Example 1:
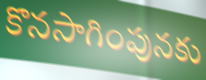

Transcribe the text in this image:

కొనసాగింపునకు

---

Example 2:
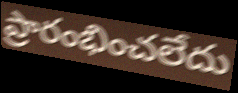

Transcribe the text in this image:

ప్రారంభించలేదు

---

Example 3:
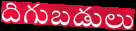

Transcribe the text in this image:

దిగుబడులు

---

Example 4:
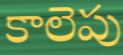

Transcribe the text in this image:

కాలెపు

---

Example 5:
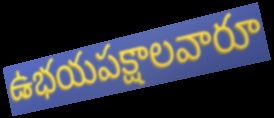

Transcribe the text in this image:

ఉభయపక్షాలవారూ